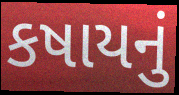
કષાયનું